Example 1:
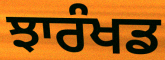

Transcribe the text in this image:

ਝਾਰੰਖਡ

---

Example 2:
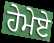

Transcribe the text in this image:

ਹੇਮੇਏ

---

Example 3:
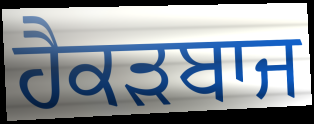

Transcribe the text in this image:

ਹੈਕੜਬਾਜ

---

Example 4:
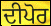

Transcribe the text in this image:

ਦੀਪੋਰ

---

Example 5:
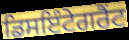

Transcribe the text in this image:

ਡਿਸਇੰਟੇਗਰੈਂਟ